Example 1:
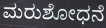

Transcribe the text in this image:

ಮರುಶೋಧನೆ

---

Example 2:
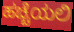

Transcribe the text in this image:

ಹಚ್ಚೆಯಲಿ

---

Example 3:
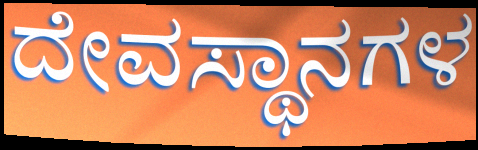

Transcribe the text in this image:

ದೇವಸ್ಥಾನಗಳ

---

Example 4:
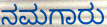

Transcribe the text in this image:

ನಮಗಾರು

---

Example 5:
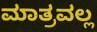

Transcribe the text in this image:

ಮಾತ್ರವಲ್ಲ